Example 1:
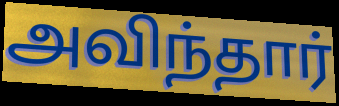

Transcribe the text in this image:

அவிந்தார்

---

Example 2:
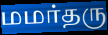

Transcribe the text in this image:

மமர்தரு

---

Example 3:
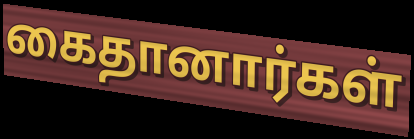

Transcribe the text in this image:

கைதானார்கள்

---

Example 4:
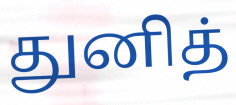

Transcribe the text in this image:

துனித்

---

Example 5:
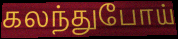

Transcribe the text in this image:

கலந்துபோய்